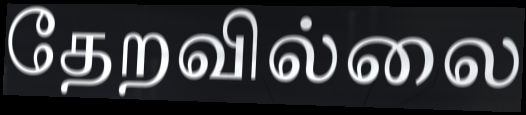
தேறவில்லை